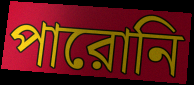
পারোনি